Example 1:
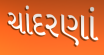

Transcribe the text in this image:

ચાંદરણાં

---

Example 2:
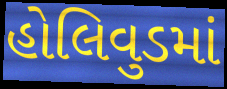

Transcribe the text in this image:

હોલિવુડમાં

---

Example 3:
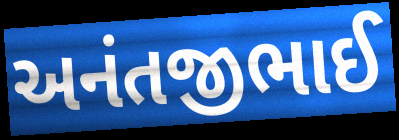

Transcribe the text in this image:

અનંતજીભાઈ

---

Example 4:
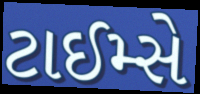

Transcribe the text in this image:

ટાઈમ્સે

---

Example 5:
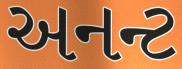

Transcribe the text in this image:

અનન્ટ